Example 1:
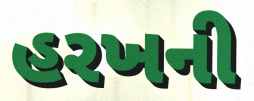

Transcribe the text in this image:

હરખની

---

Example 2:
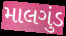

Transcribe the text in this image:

માલગુંડ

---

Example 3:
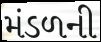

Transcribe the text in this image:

મંડળની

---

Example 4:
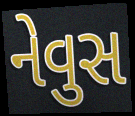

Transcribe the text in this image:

નેવુસ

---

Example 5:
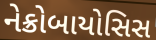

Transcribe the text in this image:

નેક્રોબાયોસિસ